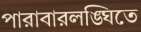
পারাবারলঙ্ঘিতে